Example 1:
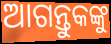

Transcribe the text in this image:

ଆଗନ୍ତୁକଙ୍କୁ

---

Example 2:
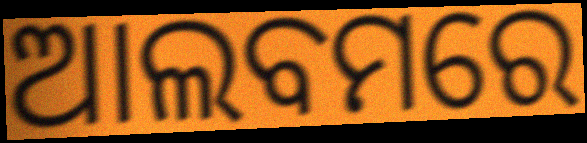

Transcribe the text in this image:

ଆଲବମରେ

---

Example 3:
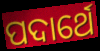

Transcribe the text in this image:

ପଦାର୍ଥେ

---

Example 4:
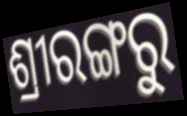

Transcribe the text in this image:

ଶ୍ରୀରଙ୍ଗରୁ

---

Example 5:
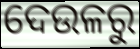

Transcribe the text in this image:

ଦେଉଳରୁ